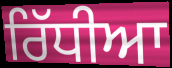
ਰਿੱਧੀਆ